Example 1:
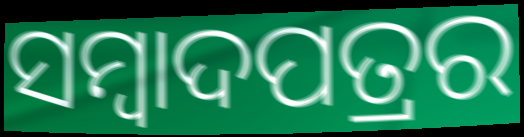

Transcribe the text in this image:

ସମ୍ବାଦପତ୍ରର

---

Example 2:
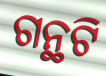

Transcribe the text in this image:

ଗନ୍ଥଟି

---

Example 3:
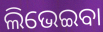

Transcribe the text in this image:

ଲିଭେଇବା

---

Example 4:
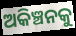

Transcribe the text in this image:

ଅକିଞ୍ଚନକୁ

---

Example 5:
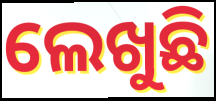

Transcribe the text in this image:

ଲେଖୁଛି